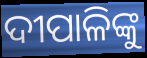
ଦୀପାଳିଙ୍କୁ